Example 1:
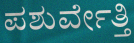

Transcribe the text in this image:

ಪಶುರ್ವೇತ್ತಿ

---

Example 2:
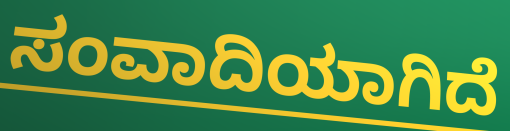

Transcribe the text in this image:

ಸಂವಾದಿಯಾಗಿದೆ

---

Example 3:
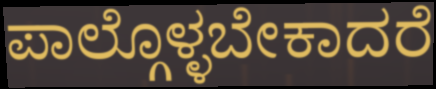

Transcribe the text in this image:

ಪಾಲ್ಗೊಳ್ಳಬೇಕಾದರೆ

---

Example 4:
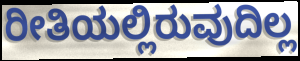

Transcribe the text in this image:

ರೀತಿಯಲ್ಲಿರುವುದಿಲ್ಲ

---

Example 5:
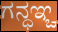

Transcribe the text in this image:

ಗನ್ಧಞ್ಚ